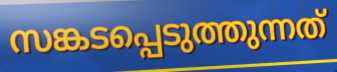
സങ്കടപ്പെടുത്തുന്നത്